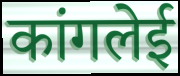
कांगलेई